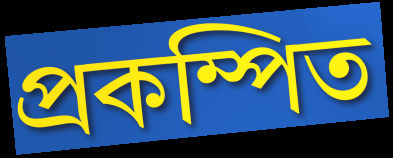
প্রকম্পিত